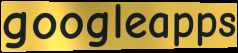
googleapps